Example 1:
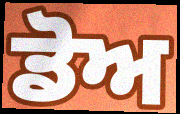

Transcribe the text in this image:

ਡੋਅ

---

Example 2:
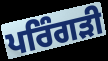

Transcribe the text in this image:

ਪਰਿੰਗੜੀ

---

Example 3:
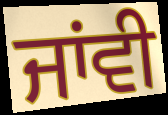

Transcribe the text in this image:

ਜਾਂਵੀ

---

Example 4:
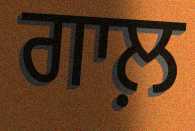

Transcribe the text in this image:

ਗਾਲ਼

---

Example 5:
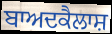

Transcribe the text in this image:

ਬਾਅਦਕੈਲਾਸ਼